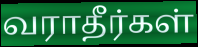
வராதீர்கள்